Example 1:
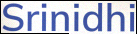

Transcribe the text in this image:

Srinidhi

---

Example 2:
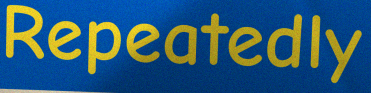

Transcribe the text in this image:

Repeatedly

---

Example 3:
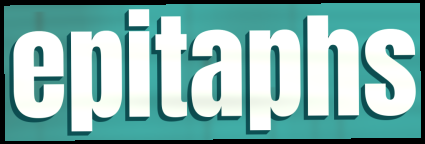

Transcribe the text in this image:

epitaphs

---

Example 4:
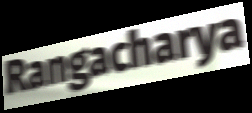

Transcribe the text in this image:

Rangacharya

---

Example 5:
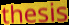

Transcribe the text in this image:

thesis